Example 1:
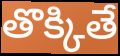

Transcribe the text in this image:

తొక్కితే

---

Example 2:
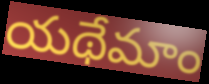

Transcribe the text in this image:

యథేమాం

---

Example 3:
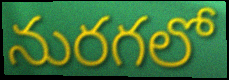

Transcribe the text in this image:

నురగలో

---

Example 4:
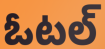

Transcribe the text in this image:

ఓటల్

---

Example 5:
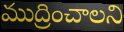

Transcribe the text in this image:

ముద్రించాలని